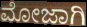
ಮೋಜಾಗಿ